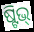
ଷ୍ଟିଭ୍